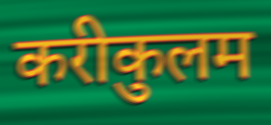
करीकुलम